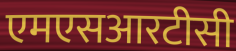
एमएसआरटीसी